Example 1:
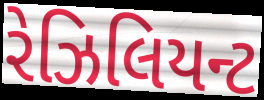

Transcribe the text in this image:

રેઝિલિયન્ટ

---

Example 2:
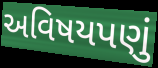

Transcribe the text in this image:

અવિષયપણું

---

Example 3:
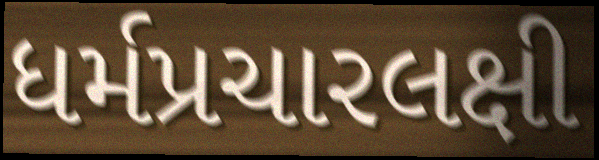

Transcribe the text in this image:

ધર્મપ્રચારલક્ષી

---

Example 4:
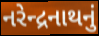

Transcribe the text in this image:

નરેન્દ્રનાથનું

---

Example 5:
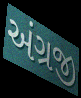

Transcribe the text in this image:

અંગ્રજી